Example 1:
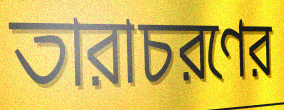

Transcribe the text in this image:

তারাচরণের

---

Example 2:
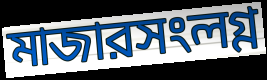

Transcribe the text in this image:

মাজারসংলগ্ন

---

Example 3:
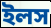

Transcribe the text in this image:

ইলস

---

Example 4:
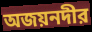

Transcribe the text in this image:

অজয়নদীর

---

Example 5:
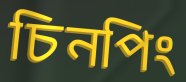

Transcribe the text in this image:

চিনপিং